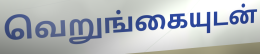
வெறுங்கையுடன்